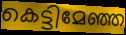
കെട്ടിമേഞ്ഞ